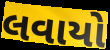
લવાયો